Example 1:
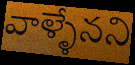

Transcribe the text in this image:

వాళ్ళేనని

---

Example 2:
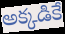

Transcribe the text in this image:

అక్కడికే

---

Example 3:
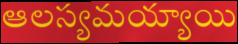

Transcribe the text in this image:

ఆలస్యమయ్యాయి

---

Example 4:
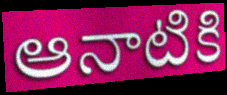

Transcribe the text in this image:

ఆనాటికి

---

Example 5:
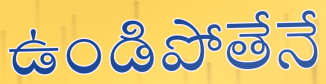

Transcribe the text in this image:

ఉండిపోతేనే